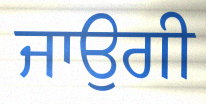
ਜਾਉਗੀ